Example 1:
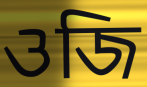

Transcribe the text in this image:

ওজি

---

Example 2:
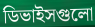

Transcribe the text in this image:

ডিভাইসগুলো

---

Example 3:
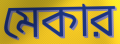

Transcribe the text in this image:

মেকার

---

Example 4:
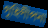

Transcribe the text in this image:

গৃহিণীপনা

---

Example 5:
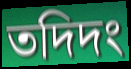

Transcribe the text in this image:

তদিদং